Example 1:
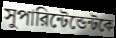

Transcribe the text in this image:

সুপারিন্টেন্ডেন্টকে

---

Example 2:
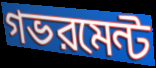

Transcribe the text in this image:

গভরমেন্ট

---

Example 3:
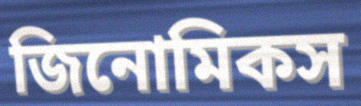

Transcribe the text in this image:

জিনোমিকস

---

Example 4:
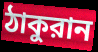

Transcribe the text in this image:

ঠাকুরান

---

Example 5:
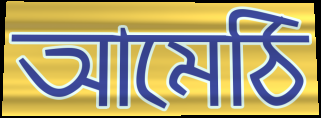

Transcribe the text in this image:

আমেঠি